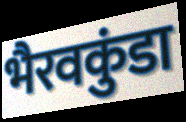
भैरवकुंडा